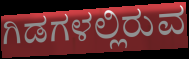
ಗಿಡಗಳಲ್ಲಿರುವ